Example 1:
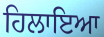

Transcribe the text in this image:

ਹਿਲਾਇਆ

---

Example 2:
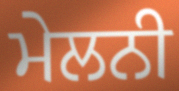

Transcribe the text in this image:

ਮੇਲਨੀ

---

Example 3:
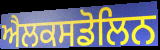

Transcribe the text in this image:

ਐਲਕਸਡੋਲਿਨ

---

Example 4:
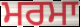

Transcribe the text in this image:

ਮਰਮਾ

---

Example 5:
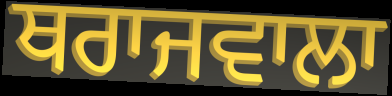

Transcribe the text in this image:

ਥਰਾਜਵਾਲਾ